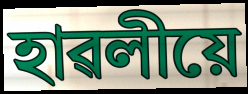
হাৱলীয়ে